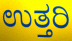
ಉತ್ತರಿ